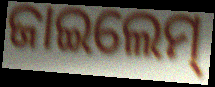
ଜାଇଲେମ୍